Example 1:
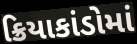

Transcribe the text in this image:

ક્રિયાકાંડોમાં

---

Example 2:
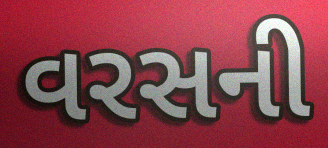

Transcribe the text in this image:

વરસની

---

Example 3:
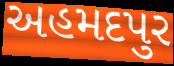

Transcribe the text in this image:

અહમદપુર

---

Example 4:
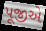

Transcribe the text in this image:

પૂજીએ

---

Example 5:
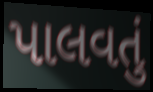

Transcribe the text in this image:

પાલવતું